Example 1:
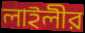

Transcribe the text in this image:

লাইলীর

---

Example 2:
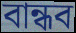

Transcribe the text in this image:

বান্ধব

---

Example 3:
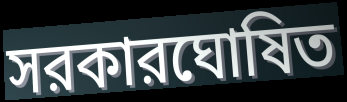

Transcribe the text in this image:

সরকারঘোষিত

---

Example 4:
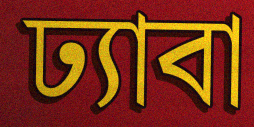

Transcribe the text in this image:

ঢ্যাবা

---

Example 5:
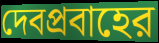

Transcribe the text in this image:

দেবপ্রবাহের